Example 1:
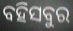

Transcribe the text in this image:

ବହିସବୁର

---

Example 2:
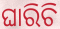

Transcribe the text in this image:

ଘାରିଚି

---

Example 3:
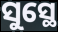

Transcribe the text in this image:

ସୁସ୍ଥେ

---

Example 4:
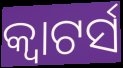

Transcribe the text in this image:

କ୍ଵାଟର୍ସ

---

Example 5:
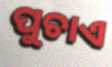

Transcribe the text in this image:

ପୁଚାଏ